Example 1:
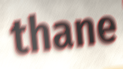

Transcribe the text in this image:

thane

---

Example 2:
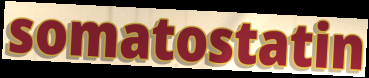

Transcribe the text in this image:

somatostatin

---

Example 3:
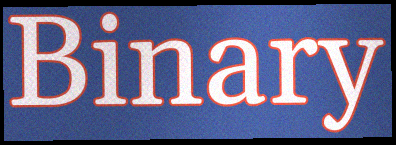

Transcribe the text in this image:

Binary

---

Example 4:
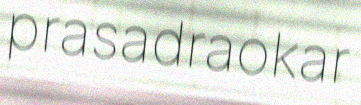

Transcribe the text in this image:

prasadraokar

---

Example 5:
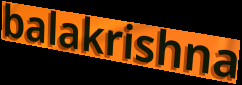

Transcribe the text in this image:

balakrishna